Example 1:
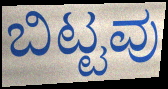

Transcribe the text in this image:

ಬಿಟ್ಟವು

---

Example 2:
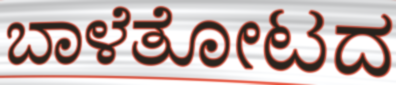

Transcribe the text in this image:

ಬಾಳೆತೋಟದ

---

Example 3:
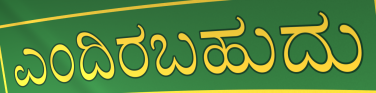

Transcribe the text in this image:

ಎಂದಿರಬಹುದು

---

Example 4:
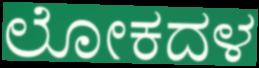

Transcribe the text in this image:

ಲೋಕದಳ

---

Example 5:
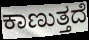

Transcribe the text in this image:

ಕಾಣುತ್ತದೆ